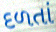
દળતાં